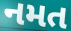
નમત